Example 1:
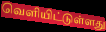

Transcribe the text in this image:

வெளியிட்டுள்ளது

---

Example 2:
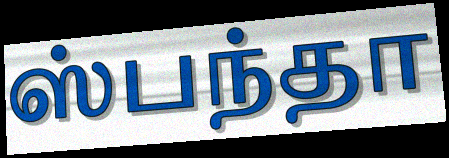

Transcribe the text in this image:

ஸ்பந்தா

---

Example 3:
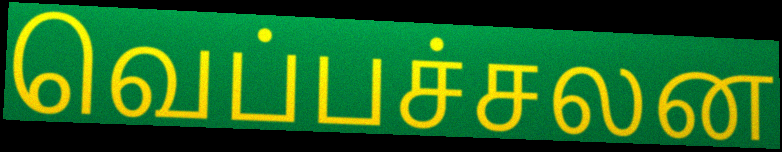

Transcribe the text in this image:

வெப்பச்சலன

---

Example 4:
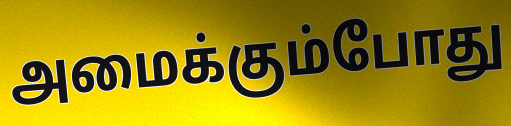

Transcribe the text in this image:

அமைக்கும்போது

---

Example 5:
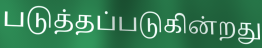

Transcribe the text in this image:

படுத்தப்படுகின்றது